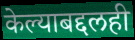
केल्याबद्दलही